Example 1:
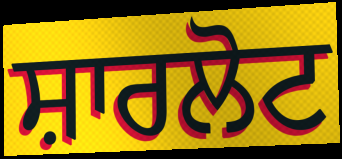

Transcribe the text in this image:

ਸ਼ਾਰਲੋਟ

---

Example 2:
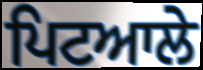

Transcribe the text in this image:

ਪਿਟਆਲੇ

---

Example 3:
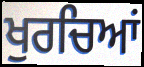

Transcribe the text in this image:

ਖੁਰਚਿਆਂ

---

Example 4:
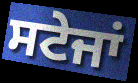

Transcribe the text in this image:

ਸਟੇਜਾਂ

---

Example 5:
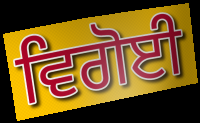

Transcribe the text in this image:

ਵਿਗੋਈ